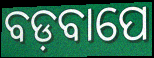
ବଡ଼ବାପେ